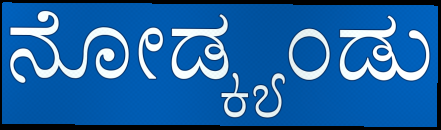
ನೋಡ್ಕ್ಯಂಡು